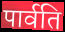
पार्वति